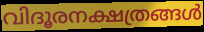
വിദൂരനക്ഷത്രങ്ങൾ